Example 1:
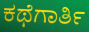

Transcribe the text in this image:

ಕಥೆಗಾರ್ತಿ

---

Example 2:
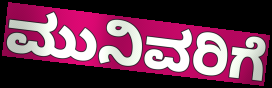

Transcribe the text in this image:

ಮುನಿವರಿಗೆ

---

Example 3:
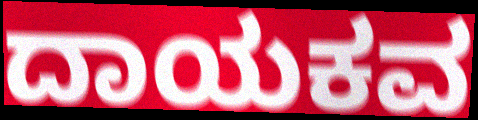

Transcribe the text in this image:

ದಾಯಕವ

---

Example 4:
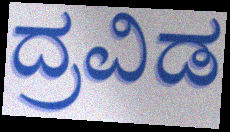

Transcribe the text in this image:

ದ್ರವಿಡ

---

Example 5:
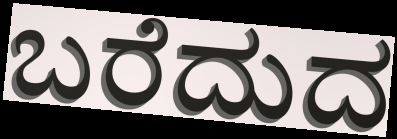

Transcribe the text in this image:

ಬರೆದುದ